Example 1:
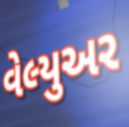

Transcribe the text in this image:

વેલ્યુઅર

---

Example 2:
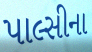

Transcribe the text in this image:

પાલ્સીના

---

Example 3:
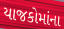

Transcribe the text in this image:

યાજકોમાંના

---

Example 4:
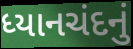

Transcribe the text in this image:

ધ્યાનચંદનું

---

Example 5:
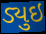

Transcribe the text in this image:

ડ્યુઇ